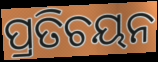
ପ୍ରତିଚୟନ